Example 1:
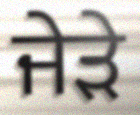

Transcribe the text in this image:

ਜੇੜੇ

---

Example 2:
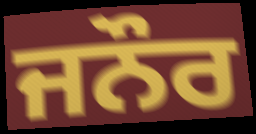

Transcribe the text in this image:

ਜਨੌਰ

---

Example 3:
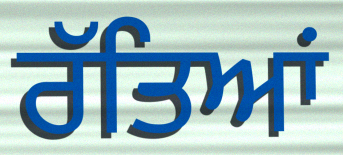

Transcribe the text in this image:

ਰੱਤਿਆਂ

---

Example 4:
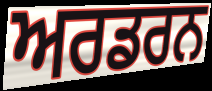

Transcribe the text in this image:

ਅਰਡਰਨ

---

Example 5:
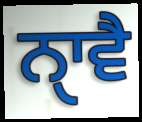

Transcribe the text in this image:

ਨੑਾਵੈ